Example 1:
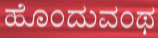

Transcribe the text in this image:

ಹೊಂದುವಂಥ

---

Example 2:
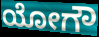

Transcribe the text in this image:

ಯೋಗೌ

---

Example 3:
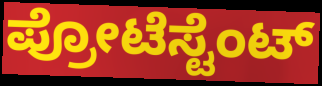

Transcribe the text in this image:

ಪ್ರೋಟೆಸ್ಟೆಂಟ್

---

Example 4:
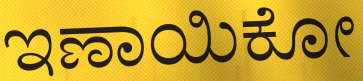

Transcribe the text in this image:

ಇಣಾಯಿಕೋ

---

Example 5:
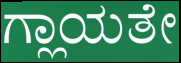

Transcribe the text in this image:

ಗ್ಲಾಯತೇ